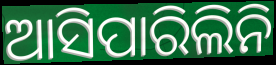
ଆସିପାରିଲିନି